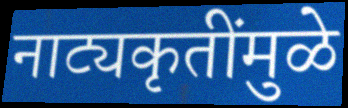
नाट्यकृतींमुळे